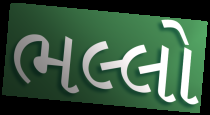
ભલ્લો